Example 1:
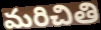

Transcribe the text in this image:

మరిచితి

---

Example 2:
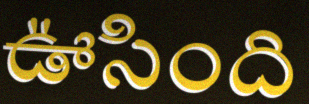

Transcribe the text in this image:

ఊసింది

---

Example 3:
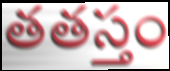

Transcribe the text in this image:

తతస్తం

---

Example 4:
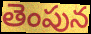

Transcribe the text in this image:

తెంపున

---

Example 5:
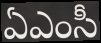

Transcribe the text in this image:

ఏఎంసీ